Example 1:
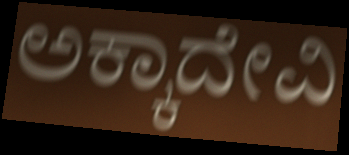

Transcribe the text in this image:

ಅಕ್ಕಾದೇವಿ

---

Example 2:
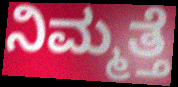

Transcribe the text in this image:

ನಿಮ್ಮತ್ತೆ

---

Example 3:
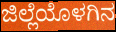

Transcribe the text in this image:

ಜಿಲ್ಲೆಯೊಳಗಿನ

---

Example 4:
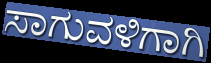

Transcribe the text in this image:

ಸಾಗುವಳಿಗಾಗಿ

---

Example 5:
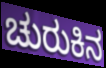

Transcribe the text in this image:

ಚುರುಕಿನ